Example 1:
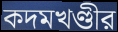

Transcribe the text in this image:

কদমখণ্ডীর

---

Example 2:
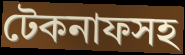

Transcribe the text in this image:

টেকনাফসহ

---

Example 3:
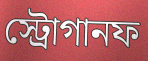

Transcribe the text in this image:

স্ট্রোগানফ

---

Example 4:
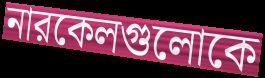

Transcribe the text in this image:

নারকেলগুলোকে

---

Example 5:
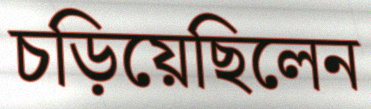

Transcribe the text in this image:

চড়িয়েছিলেন